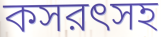
কসরৎসহ